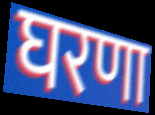
घरणा